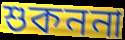
শুকননা